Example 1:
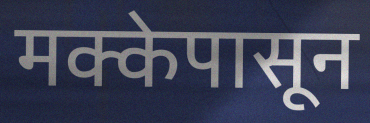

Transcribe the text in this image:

मक्केपासून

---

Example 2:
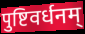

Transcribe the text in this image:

पुष्टिवर्धनम्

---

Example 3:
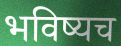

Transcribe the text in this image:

भविष्यच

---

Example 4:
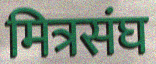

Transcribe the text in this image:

मित्रसंघ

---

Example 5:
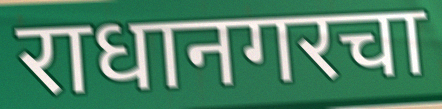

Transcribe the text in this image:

राधानगरचा